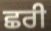
ਛਰੀ